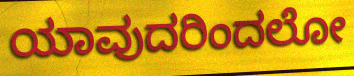
ಯಾವುದರಿಂದಲೋ